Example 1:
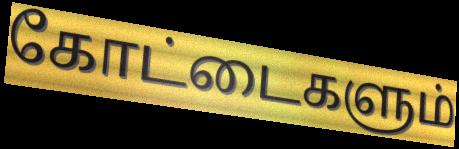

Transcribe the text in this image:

கோட்டைகளும்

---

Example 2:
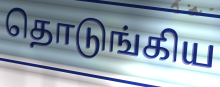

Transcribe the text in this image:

தொடுங்கிய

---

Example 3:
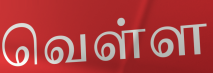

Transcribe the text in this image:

வெள்ள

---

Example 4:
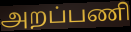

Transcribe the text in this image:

அறப்பணி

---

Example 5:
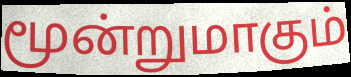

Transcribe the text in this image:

மூன்றுமாகும்